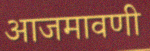
आजमावणी